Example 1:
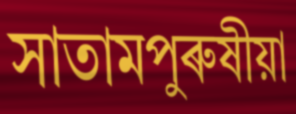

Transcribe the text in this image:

সাতামপুৰুষীয়া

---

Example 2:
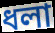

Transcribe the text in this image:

ধলা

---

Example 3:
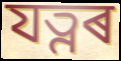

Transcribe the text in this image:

যত্নৰ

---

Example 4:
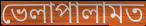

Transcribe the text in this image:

ভেলাপালামত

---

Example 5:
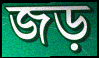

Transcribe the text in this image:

জড়